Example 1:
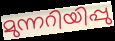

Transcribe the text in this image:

മുന്നറിയിപ്പു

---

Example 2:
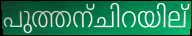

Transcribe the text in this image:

പുത്തന്ചിറയില്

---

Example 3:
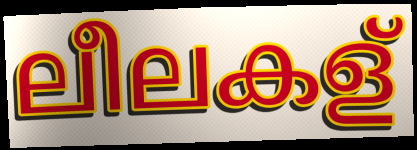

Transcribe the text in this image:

ലീലകള്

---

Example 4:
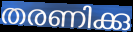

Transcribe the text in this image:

തരണിക്കു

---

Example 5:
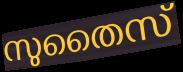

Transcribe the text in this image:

സുതൈസ്